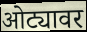
ओट्यावर